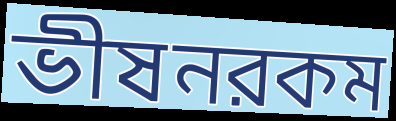
ভীষনরকম